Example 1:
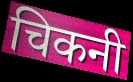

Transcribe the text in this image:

चिकनी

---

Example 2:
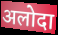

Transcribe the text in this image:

अलोदा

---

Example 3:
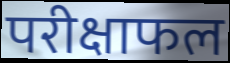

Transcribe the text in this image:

परीक्षाफल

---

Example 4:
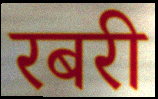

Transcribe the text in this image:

रबरी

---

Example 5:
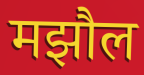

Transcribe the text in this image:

मझौल